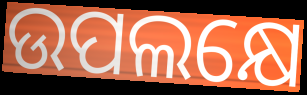
ଉପଲକ୍ଷେ